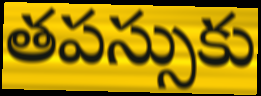
తపస్సుకు